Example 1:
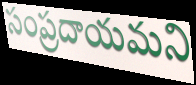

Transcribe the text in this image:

సంప్రదాయమని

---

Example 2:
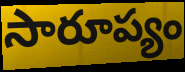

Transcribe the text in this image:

సారూప్యం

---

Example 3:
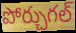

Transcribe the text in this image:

పోర్చుగల్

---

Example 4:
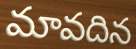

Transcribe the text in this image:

మావదిన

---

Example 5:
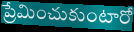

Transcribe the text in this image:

ప్రేమించుకుంటారో